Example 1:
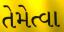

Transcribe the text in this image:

તેમેત્વા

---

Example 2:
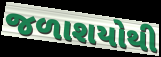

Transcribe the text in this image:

જળાશયોથી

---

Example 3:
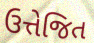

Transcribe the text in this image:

ઉત્તેજિત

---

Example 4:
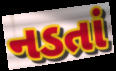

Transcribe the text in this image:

નડતાં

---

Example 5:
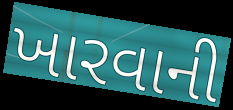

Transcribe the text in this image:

ખારવાની